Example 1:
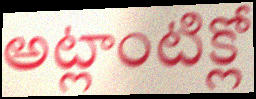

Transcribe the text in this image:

అట్లాంటిక్లో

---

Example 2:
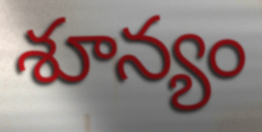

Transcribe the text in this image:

శూన్యం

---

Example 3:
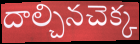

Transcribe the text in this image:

దాల్చినచెక్క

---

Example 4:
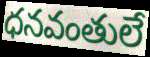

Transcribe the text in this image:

ధనవంతులే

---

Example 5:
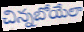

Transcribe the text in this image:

చిన్నబోయేలా